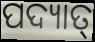
ପଦ୍ୟାତ୍